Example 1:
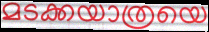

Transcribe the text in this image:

മടക്കയാത്രയെ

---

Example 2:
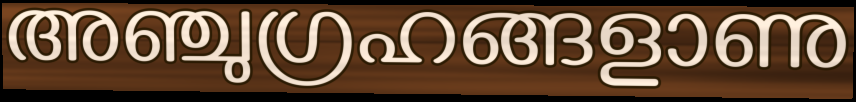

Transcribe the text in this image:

അഞ്ചുഗ്രഹങ്ങളാണു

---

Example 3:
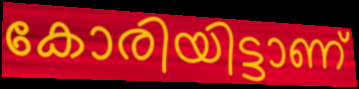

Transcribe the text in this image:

കോരിയിട്ടാണ്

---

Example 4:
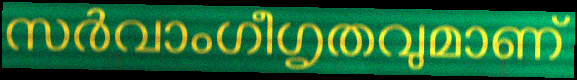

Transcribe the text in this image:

സർവാംഗീഗൃതവുമാണ്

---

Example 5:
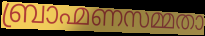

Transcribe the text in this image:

ബ്രാഹ്മണസമ്മതാ